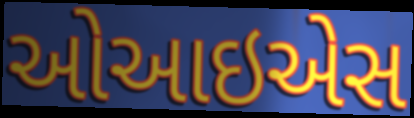
ઓઆઇએસ